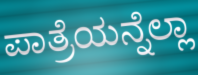
ಪಾತ್ರೆಯನ್ನೆಲ್ಲಾ